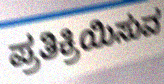
ಪ್ರತಿಕ್ರಿಯಿಸುವ